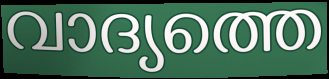
വാദ്യത്തെ